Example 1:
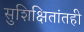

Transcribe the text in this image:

सुशिक्षितांतही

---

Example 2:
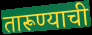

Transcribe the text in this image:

तारूण्याची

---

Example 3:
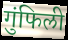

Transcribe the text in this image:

गुंफिली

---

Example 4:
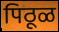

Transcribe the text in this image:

पिठूळ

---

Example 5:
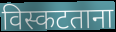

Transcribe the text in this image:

विस्कटताना